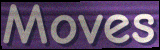
Moves